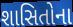
શાસિતોના